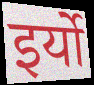
इर्यो